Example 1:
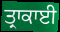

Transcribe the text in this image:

ਤ੍ਰਾਕਾਈ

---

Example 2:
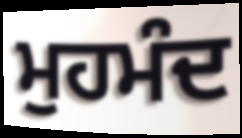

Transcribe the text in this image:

ਮੁਹਮੰਦ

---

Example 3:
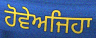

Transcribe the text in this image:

ਹੋਵੇਅਜਿਹਾ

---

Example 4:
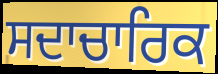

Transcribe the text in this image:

ਸਦਾਚਾਰਿਕ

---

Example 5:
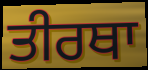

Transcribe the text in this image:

ਤੀਰਥਾ